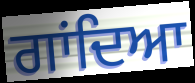
ਗਾਂਦਿਆ